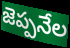
జెప్పనేల